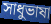
সাধুভাষা